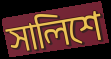
সালিশে